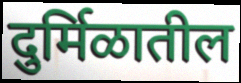
दुर्मिळातील